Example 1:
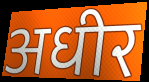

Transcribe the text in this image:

अधीर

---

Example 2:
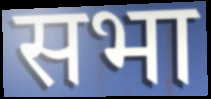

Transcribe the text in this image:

सभा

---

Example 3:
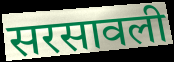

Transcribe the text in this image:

सरसावली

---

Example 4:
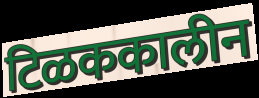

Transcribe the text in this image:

टिळककालीन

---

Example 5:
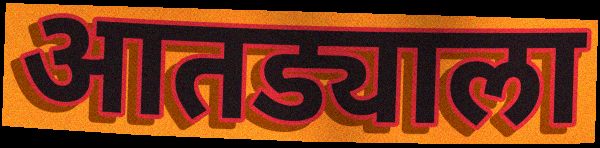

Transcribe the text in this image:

आतड्याला